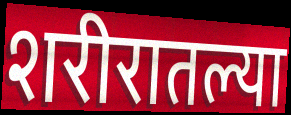
शरीरातल्या